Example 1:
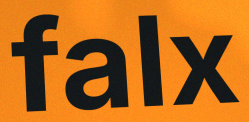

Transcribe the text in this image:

falx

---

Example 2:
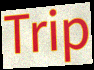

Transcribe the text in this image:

Trip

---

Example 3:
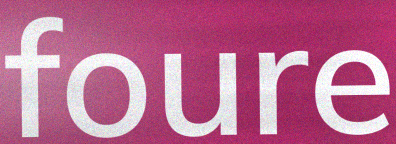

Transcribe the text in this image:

foure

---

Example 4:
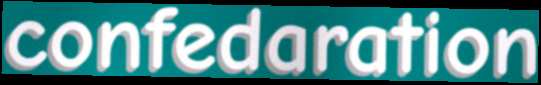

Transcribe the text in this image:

confedaration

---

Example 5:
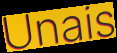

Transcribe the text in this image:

Unais